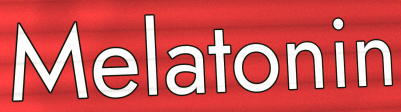
Melatonin